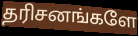
தரிசனங்களே